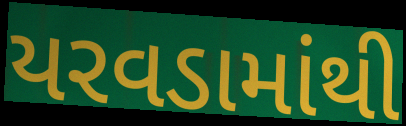
યરવડામાંથી